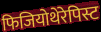
फिजियोथेरेपिस्ट